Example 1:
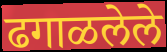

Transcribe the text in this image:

ढगाळलेले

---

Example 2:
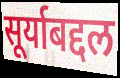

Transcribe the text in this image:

सूर्याबद्दल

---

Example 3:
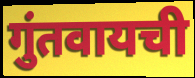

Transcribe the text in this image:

गुंतवायची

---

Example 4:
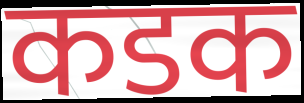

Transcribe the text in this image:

कडक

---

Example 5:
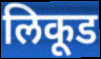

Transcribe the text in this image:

लिकूड